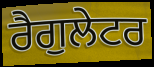
ਰੈਗੁਲੇਟਰ